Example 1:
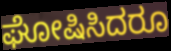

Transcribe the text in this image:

ಘೋಷಿಸಿದರೂ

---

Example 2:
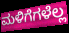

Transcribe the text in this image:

ಮಳಿಗೆಗಳೆಲ್ಲ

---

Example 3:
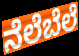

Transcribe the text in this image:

ನೆಲೆಬೆಲೆ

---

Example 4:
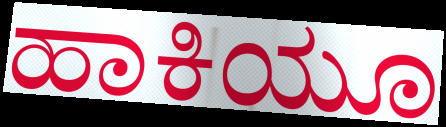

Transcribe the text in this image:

ಹಾಕಿಯೂ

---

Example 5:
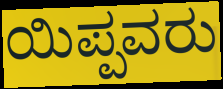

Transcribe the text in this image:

ಯಿಪ್ಪವರು